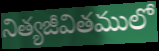
నిత్యజీవితములో